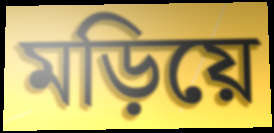
মড়িয়ে